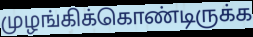
முழங்கிக்கொண்டிருக்க